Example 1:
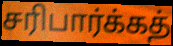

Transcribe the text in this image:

சரிபார்க்கத்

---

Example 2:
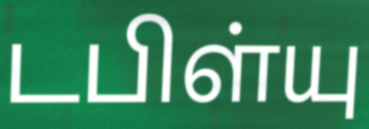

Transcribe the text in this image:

டபிள்யு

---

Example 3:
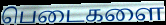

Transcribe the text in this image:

பெடைகளை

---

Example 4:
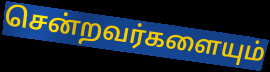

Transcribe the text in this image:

சென்றவர்களையும்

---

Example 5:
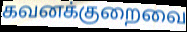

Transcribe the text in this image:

கவனக்குறைவை